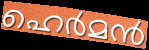
ഹെർമൻ